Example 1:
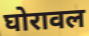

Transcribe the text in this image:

घोरावल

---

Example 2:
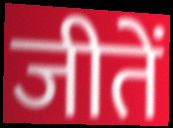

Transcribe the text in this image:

जीतें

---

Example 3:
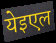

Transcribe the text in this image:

येइएल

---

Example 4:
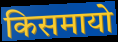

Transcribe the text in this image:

किसमायो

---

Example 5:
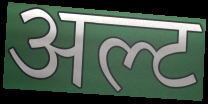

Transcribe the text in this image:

अल्ट